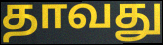
தாவது